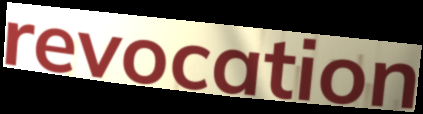
revocation